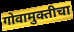
गोवामुक्तीचा